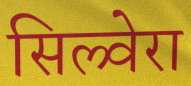
सिल्वेरा